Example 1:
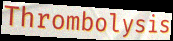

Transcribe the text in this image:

Thrombolysis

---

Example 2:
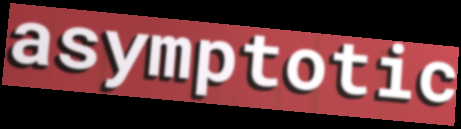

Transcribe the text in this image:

asymptotic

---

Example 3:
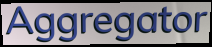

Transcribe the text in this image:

Aggregator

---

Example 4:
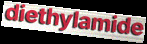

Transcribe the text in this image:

diethylamide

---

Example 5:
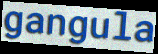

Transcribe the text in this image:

gangula